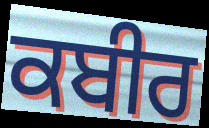
ਕਬੀਰ